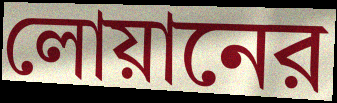
লোয়ানের